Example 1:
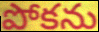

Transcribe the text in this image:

పోకను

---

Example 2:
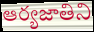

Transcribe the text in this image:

ఆర్యజాతిని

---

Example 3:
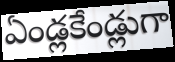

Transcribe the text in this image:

ఏండ్లకేండ్లుగా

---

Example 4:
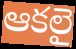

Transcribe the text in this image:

ఆకలై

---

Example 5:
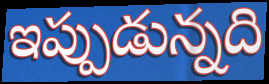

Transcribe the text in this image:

ఇప్పుడున్నది